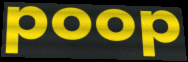
poop